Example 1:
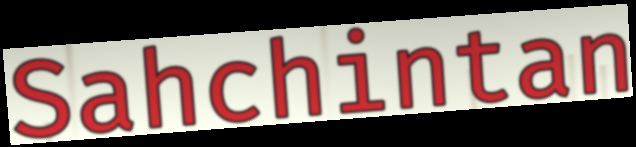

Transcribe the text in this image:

Sahchintan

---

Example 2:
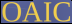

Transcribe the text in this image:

OAIC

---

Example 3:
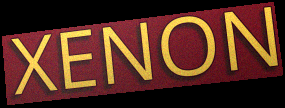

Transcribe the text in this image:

XENON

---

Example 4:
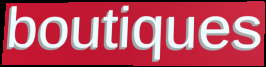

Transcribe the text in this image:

boutiques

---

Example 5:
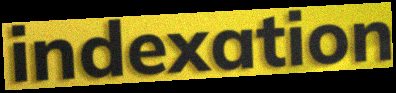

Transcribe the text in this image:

indexation